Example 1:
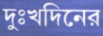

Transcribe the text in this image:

দুঃখদিনের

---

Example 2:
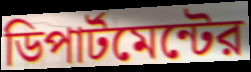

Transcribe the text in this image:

ডিপার্টমেন্টের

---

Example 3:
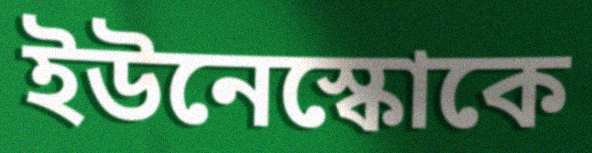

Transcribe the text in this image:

ইউনেস্কোকে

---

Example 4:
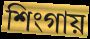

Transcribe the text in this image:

শিংগায়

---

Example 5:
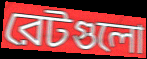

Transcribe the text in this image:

রেটগুলো